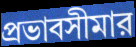
প্রভাবসীমার